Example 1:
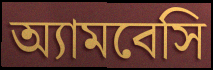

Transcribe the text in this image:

অ্যামবেসি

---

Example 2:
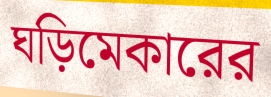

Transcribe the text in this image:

ঘড়িমেকারের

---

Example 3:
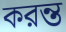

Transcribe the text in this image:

করন্ত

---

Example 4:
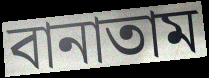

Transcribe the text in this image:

বানাতাম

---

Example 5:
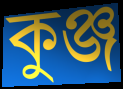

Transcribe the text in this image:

কুঞ্জ